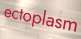
ectoplasm